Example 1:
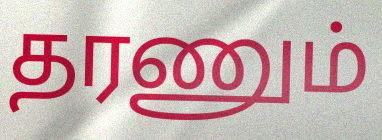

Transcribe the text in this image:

தரணும்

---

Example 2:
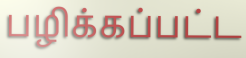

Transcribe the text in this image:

பழிக்கப்பட்ட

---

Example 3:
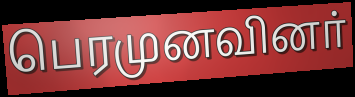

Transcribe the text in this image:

பெரமுனவினர்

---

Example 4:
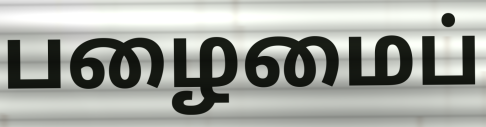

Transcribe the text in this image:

பழைமைப்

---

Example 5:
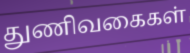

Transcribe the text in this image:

துணிவகைகள்